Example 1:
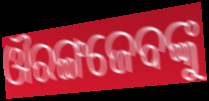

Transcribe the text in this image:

ଔରଙ୍ଗଜେବଙ୍କୁ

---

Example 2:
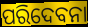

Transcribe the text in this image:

ପରିଦେବନା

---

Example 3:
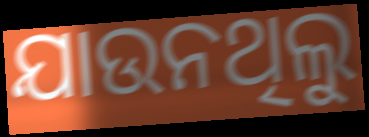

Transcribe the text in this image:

ଯାଉନଥିଲୁ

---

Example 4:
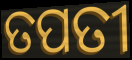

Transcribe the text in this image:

ତପତୀ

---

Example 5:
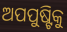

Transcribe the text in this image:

ଅପପୁଷ୍ଟିକୁ